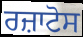
ਰਜ਼ਾਟੋਸ